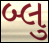
બ્લુ